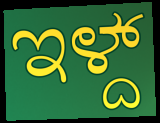
ಇಳ್ದ್